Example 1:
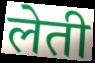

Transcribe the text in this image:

लेती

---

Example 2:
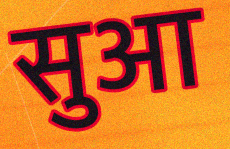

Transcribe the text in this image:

सुआ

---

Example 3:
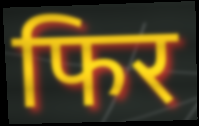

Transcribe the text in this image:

फिर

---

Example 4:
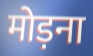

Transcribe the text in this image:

मोड़ना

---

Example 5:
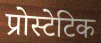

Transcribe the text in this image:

प्रोस्टेटिक